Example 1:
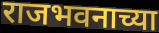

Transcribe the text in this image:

राजभवनाच्या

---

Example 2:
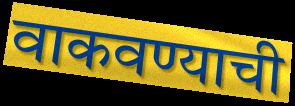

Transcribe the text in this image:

वाकवण्याची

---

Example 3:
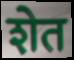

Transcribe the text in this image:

शेत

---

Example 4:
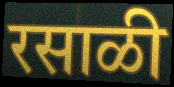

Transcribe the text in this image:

रसाळी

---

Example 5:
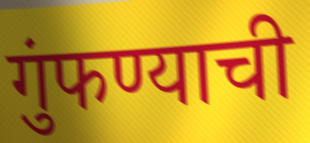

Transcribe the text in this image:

गुंफण्याची